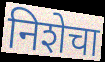
निशेचा